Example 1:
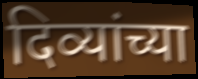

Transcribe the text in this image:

दिव्यांच्या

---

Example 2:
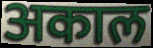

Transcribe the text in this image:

अकाल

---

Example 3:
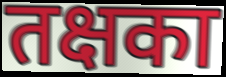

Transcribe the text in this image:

तक्षका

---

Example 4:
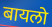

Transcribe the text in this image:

बायलो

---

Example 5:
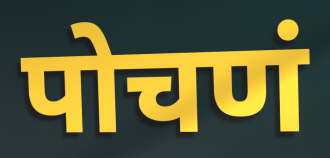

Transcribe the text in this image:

पोचणं